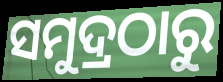
ସମୁଦ୍ରଠାରୁ